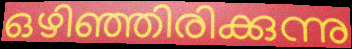
ഒഴിഞ്ഞിരിക്കുന്നു